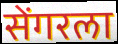
सेंगरला